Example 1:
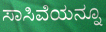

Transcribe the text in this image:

ಸಾಸಿವೆಯನ್ನೂ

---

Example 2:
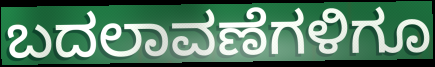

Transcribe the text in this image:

ಬದಲಾವಣೆಗಳಿಗೂ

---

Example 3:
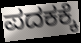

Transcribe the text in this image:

ಪದಕಕ್ಕೆ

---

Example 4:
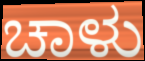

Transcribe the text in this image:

ಚಾಳು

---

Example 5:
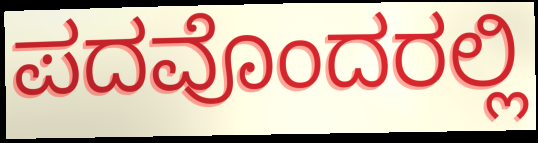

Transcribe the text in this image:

ಪದವೊಂದರಲ್ಲಿ